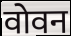
वोवन